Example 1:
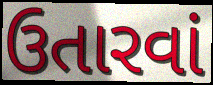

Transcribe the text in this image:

ઉતારવાં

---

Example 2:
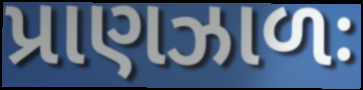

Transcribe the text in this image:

પ્રાણઝાળઃ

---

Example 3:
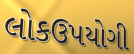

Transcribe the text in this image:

લોકઉપયોગી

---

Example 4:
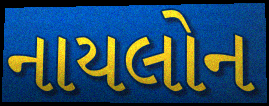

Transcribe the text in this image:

નાયલોન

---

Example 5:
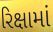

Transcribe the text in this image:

રિક્ષામાં